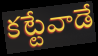
కట్టేవాడే